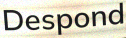
Despond